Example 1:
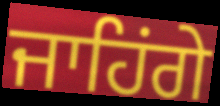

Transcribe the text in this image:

ਜਾਹਿਂਗੇ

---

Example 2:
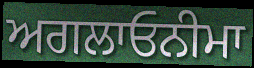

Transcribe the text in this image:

ਅਗਲਾਓਨੀਮਾ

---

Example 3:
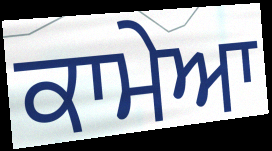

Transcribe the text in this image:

ਕਾਮੇਆ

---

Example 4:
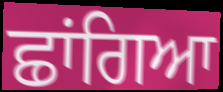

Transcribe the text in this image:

ਛਾਂਗਿਆ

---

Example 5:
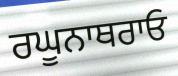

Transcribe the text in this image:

ਰਘੂਨਾਥਰਾਓ